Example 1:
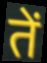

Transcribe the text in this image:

तें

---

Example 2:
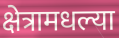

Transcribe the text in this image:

क्षेत्रामधल्या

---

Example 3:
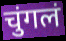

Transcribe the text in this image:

चुंगलं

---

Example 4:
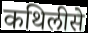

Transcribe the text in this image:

कथिलीसे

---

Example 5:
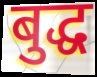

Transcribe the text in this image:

बुद्ध